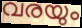
വരയും